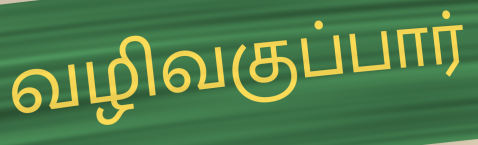
வழிவகுப்பார்